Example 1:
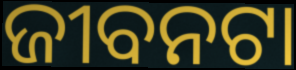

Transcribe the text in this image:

ଜୀବନଟା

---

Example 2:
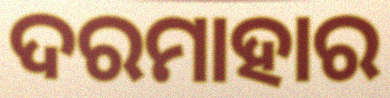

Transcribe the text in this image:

ଦରମାହାର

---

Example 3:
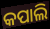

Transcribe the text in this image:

କପାଲି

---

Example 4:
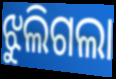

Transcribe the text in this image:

ଝୁଲିଗଲା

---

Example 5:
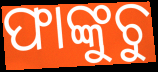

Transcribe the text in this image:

ଫାଙ୍କୁଚୁ